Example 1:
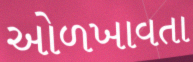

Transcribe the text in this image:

ઓળખાવતા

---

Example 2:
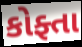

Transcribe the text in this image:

કોફ્તા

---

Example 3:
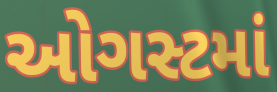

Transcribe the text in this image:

ઓગસ્ટમાં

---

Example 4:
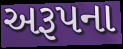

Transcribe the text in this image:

અરૂપના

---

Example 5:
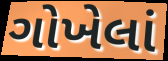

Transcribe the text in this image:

ગોખેલાં